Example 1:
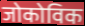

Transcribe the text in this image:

जोकोविक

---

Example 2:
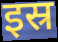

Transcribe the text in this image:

इस्र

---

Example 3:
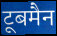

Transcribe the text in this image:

टूबमैन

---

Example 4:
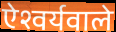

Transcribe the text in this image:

ऐश्वर्यवाले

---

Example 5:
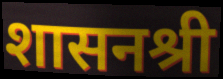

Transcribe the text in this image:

शासनश्री